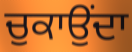
ਚੁਕਾਉਂਦਾ